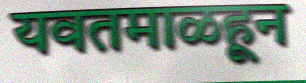
यवतमाळहून